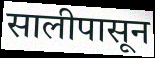
सालीपासून